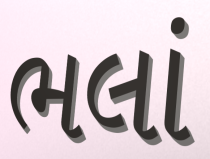
ભલાં